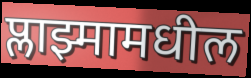
प्लाझ्मामधील